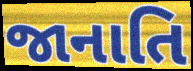
જાનાતિ